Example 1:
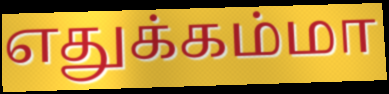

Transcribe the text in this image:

எதுக்கம்மா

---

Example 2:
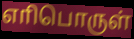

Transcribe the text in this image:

எரிபொருள்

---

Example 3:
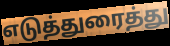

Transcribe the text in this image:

எடுத்துரைத்து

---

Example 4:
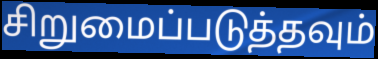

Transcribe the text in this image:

சிறுமைப்படுத்தவும்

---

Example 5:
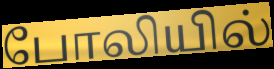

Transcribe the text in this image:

போலியில்